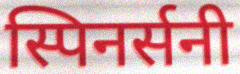
स्पिनर्सनी